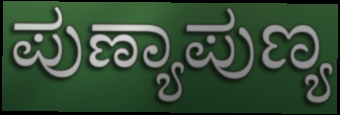
ಪುಣ್ಯಾಪುಣ್ಯ